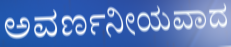
ಅವರ್ಣನೀಯವಾದ